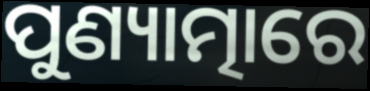
ପୁଣ୍ୟାତ୍ମାରେ